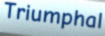
Triumphal